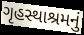
ગૃહસ્થાશ્રમનું